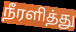
நீரளித்து